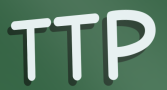
TTP